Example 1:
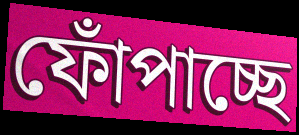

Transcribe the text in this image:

ফোঁপাচ্ছে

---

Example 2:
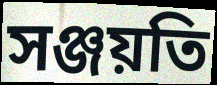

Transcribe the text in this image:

সঞ্জয়তি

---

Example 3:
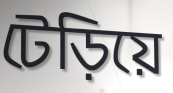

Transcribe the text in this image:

টেড়িয়ে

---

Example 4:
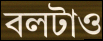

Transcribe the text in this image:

বলটাও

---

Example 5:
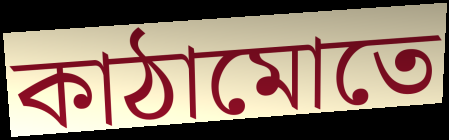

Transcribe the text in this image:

কাঠামোতে